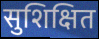
सुशिक्षित